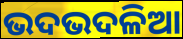
ଭଦଭଦଳିଆ